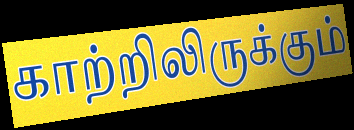
காற்றிலிருக்கும்